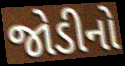
જોડીનો